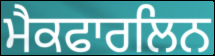
ਮੈਕਫਾਰਲਿਨ